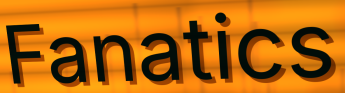
Fanatics